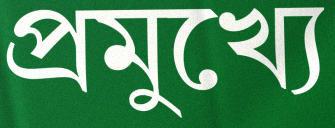
প্ৰমুখ্যে